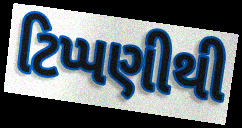
ટિપ્પણીથી